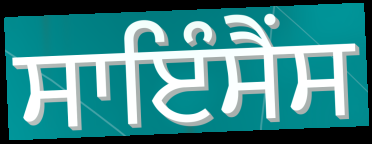
ਸਾਇੰਸੈਂਸ